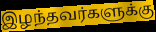
இழந்தவர்களுக்கு